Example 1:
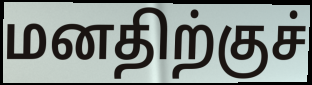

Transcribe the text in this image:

மனதிற்குச்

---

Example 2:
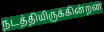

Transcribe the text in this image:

நடத்தியிருக்கின்றன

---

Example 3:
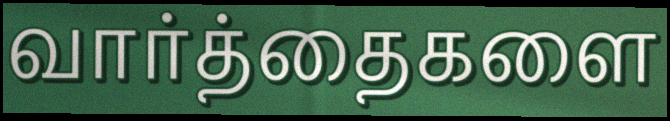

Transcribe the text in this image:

வார்த்தைகளை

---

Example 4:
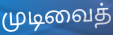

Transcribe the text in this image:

முடிவைத்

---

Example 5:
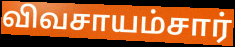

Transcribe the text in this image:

விவசாயம்சார்